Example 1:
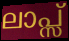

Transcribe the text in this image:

ലാപ്സ്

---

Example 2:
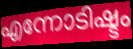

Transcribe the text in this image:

എന്നോടിഷ്ടം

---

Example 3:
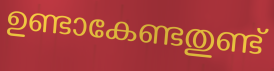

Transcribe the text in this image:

ഉണ്ടാകേണ്ടതുണ്ട്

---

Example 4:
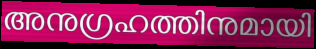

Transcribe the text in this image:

അനുഗ്രഹത്തിനുമായി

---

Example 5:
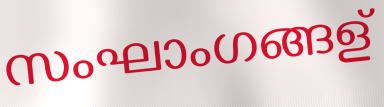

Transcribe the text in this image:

സംഘാംഗങ്ങള്